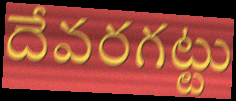
దేవరగట్టు